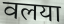
वलया